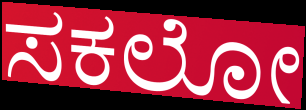
ಸಕಲೋ